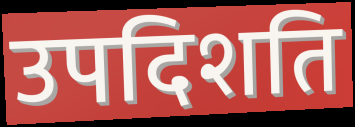
उपदिशति